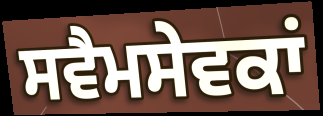
ਸਵੈਮਸੇਵਕਾਂ